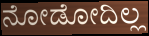
ನೋಡೋದಿಲ್ಲ